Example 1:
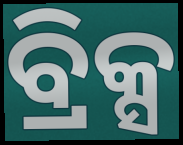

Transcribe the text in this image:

ବ୍ରିକ୍ସ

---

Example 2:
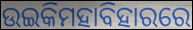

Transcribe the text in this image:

ଉଇକିମହାବିହାରରେ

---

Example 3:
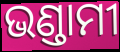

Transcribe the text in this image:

ଭଣ୍ଡାମୀ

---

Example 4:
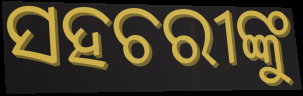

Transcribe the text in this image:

ସହଚରୀଙ୍କୁ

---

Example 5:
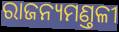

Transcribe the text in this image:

ରାଜନ୍ୟମଣ୍ତଳୀ